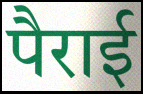
पैराई